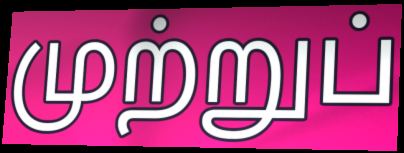
முற்றுப்